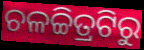
ଚଳଚ୍ଚିତ୍ରଟିରୁ